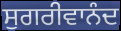
ਸੁਗਰੀਵਾਨੰਦ